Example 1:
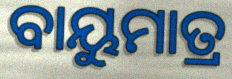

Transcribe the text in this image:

ବାୟୁମାତ୍ର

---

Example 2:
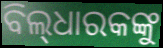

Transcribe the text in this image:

ବିଲ୍‌ଧାରକଙ୍କୁ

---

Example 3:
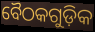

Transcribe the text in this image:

ବୈଠକଗୁଡ଼ିକ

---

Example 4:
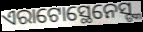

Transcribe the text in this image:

ଏରାଟୋସ୍ଥେନେସ୍ଙ୍କ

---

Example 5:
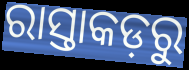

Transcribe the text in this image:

ରାସ୍ତାକଡ଼ରୁ